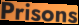
Prisons